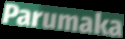
Parumaka